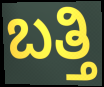
ಬತ್ತಿ